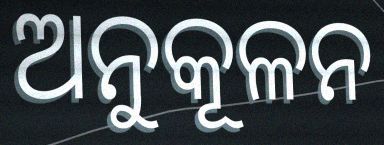
ଅନୁକୂଳନ